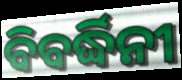
ବିବର୍ଦ୍ଧିନୀ